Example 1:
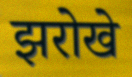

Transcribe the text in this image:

झरोखे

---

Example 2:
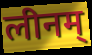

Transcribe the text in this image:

लीनम्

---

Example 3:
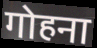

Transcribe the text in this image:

गोहना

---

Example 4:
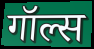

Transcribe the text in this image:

गॉल्स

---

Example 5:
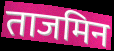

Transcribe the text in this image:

ताजमिन